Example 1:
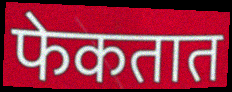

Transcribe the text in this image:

फेकतात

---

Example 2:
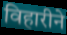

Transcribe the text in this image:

विहारीने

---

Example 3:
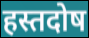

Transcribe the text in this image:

हस्तदोष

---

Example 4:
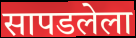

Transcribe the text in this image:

सापडलेला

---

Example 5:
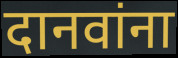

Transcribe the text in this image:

दानवांना